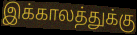
இக்காலத்துக்கு